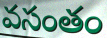
వసంతం